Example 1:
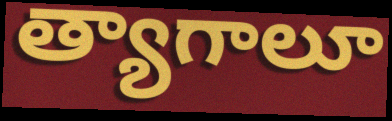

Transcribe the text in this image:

త్యాగాలూ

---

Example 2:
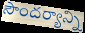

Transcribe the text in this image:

సౌందర్యాన్ని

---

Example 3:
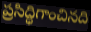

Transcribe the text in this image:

ప్రసిద్ధిగాంచినది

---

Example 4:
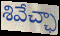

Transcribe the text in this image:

శివేచ్ఛా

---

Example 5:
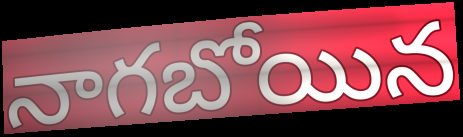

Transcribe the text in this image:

నాగబోయిన